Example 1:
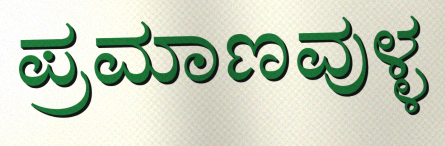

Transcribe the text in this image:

ಪ್ರಮಾಣವುಳ್ಳ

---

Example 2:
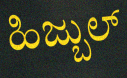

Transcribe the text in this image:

ಹಿಜ್ಬುಲ್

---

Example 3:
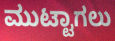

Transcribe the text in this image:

ಮುಟ್ಟಾಗಲು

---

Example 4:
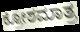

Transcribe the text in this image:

ಕ್ರೋಶಮಾತ್ರ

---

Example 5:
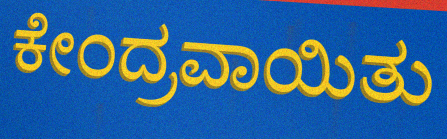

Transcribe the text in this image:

ಕೇಂದ್ರವಾಯಿತು